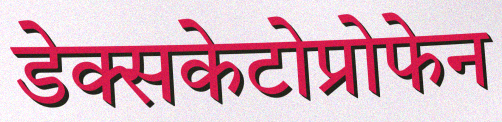
डेक्सकेटोप्रोफेन